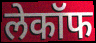
लेकॉफ